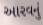
આરવનું